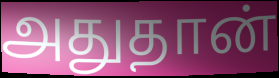
அதுதான்